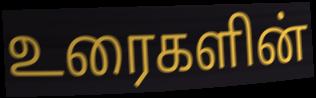
உரைகளின்